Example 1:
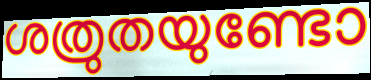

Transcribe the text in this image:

ശത്രുതയുണ്ടോ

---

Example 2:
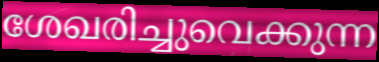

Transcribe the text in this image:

ശേഖരിച്ചുവെക്കുന്ന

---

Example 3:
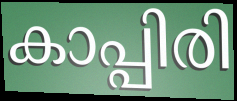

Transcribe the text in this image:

കാപ്പിരി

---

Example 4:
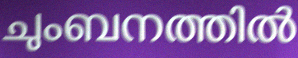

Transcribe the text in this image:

ചുംബനത്തിൽ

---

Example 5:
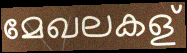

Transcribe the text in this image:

മേഖലകള്